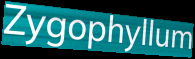
Zygophyllum